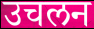
उचलन